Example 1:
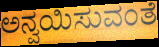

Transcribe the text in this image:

ಅನ್ವಯಿಸುವಂತೆ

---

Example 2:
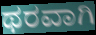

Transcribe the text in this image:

ಥರವಾಗಿ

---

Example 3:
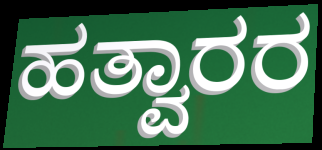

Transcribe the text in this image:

ಹತ್ವಾರರ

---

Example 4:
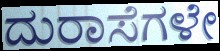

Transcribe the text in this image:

ದುರಾಸೆಗಳೇ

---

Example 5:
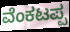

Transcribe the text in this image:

ವೆಂಕಟಪ್ಪ